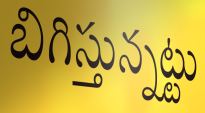
బిగిస్తున్నట్టు